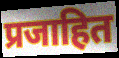
प्रजाहित